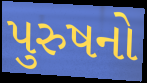
પુરુષનો